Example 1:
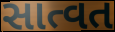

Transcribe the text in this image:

સાત્વત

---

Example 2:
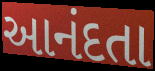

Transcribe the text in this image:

આનંદતા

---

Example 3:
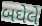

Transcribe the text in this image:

બઘેલે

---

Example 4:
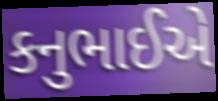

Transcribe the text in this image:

કનુભાઈએ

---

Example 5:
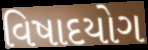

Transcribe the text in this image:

વિષાદયોગ